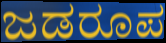
ಜಡರೂಪ